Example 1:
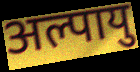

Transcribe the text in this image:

अल्पायु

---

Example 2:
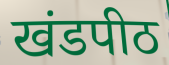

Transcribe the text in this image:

खंडपीठ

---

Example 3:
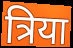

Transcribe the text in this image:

त्रिया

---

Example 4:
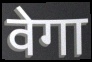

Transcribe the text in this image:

वेगा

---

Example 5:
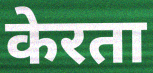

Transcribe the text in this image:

केरता